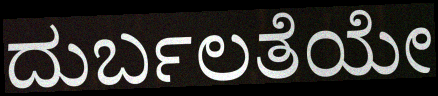
ದುರ್ಬಲತೆಯೇ